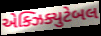
એક્ઝિક્યુટેબલ